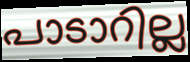
പാടാറില്ല